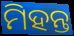
ମିହନ୍ତ